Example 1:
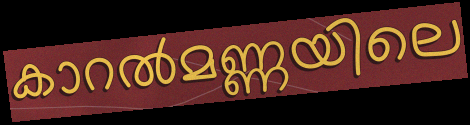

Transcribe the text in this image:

കാറൽമണ്ണയിലെ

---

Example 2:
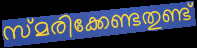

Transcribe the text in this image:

സ്മരിക്കേണ്ടതുണ്ട്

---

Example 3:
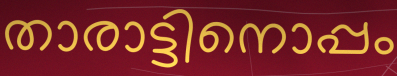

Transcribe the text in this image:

താരാട്ടിനൊപ്പം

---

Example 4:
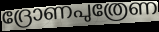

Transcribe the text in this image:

ദ്രോണപുത്രേണ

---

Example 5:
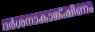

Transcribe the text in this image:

ദർശനാകാങ്ക്ഷിണം